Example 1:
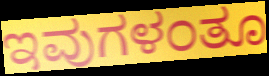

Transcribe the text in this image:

ಇವುಗಳಂತೂ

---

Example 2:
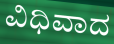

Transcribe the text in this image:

ವಿಧಿವಾದ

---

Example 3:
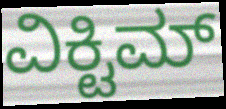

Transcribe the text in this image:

ವಿಕ್ಟಿಮ್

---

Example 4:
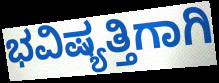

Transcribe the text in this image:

ಭವಿಷ್ಯತ್ತಿಗಾಗಿ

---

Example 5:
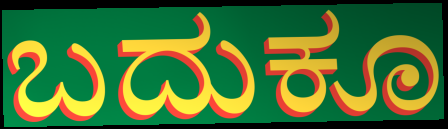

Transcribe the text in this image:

ಬದುಕೂ